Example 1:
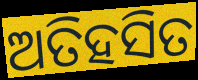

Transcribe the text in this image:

ଅତିହସିତ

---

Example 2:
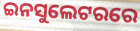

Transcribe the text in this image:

ଇନସୁଲେଟରରେ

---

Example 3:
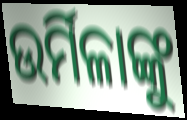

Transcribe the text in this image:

ଉର୍ମିଳାଙ୍କୁ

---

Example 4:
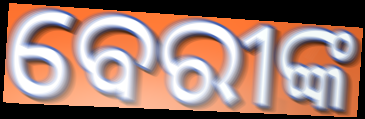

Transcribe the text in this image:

ବେରୀଙ୍କ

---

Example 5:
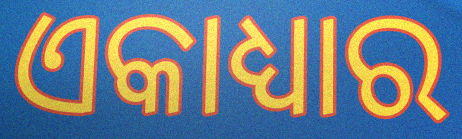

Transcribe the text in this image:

ଏକାଧ୍ୟାର